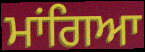
ਮਾਂਗਿਆ